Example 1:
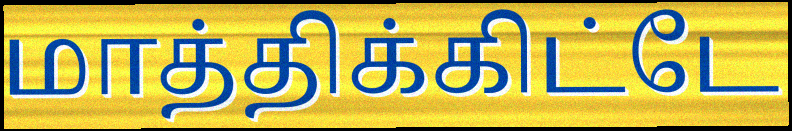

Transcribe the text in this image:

மாத்திக்கிட்டே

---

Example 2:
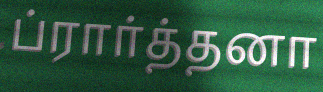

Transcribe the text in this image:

ப்ரார்த்தனா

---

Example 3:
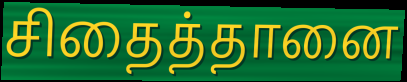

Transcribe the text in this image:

சிதைத்தானை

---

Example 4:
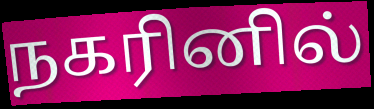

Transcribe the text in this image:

நகரினில்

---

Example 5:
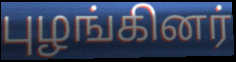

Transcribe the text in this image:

புழங்கினர்